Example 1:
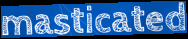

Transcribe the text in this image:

masticated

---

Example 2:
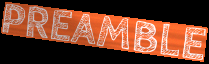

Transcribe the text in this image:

PREAMBLE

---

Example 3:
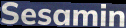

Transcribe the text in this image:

Sesamin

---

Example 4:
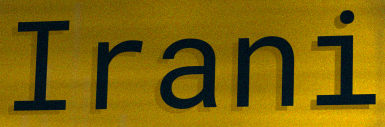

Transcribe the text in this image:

Irani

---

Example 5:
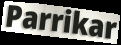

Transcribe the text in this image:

Parrikar